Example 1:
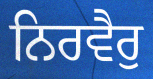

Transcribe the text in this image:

ਨਿਰਵੈਰੁ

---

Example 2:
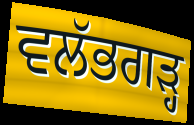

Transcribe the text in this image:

ਵਲੱਭਗੜ੍ਹ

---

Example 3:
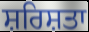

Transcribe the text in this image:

ਸ਼ਰਿਸ਼ਤਾ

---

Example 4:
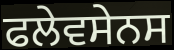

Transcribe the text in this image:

ਫਲੇਵਸੇਨਸ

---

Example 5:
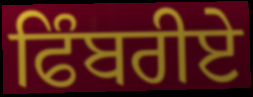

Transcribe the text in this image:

ਫਿੰਬਰੀਏ